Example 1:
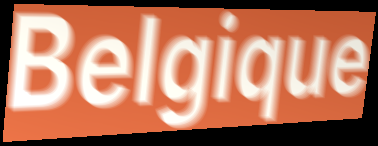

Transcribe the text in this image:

Belgique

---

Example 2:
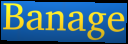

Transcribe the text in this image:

Banage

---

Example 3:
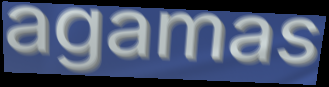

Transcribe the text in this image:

agamas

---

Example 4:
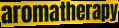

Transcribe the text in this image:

aromatherapy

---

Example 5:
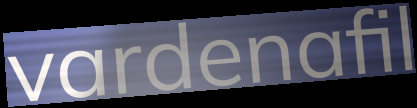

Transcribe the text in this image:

vardenafil